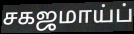
சகஜமாய்ப்